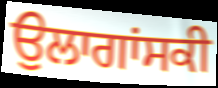
ਉਲਾਗਾਂਸਕੀ